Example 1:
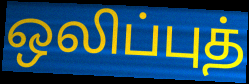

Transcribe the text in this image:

ஒலிப்புத்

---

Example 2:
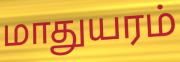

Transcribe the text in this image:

மாதுயரம்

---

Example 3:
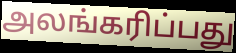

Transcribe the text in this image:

அலங்கரிப்பது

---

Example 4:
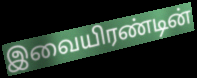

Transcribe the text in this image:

இவையிரண்டின்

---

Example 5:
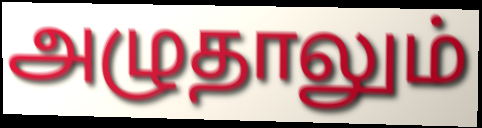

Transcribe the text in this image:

அழுதாலும்